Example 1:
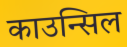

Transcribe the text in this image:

काउन्सिल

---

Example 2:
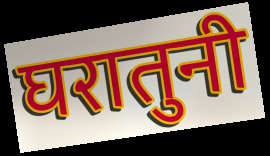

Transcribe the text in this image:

घरातुनी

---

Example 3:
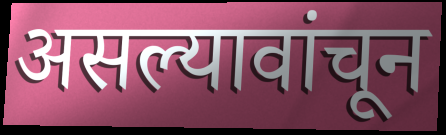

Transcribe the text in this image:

असल्यावांचून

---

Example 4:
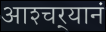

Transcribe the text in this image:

आश्चर्यानं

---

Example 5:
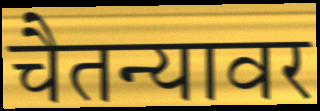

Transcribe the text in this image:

चैतन्यावर